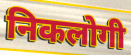
निकलोगी